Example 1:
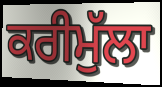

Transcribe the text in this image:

ਕਰੀਮੁੱਲਾ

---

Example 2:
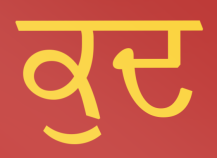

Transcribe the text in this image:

ਕੁਦ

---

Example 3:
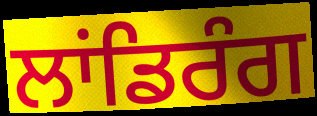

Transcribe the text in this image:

ਲਾਂਡਿਰੰਗ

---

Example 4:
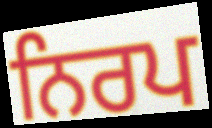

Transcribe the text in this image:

ਨਿਰਪ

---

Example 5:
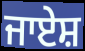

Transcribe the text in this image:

ਜਾਏਸ਼